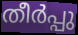
തീർപ്പു